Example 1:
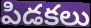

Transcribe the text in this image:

పిడకలు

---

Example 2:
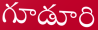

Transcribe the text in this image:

గూడూరి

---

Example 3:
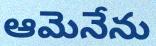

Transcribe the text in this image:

ఆమెనేను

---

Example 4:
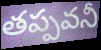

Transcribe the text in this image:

తప్పవనీ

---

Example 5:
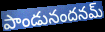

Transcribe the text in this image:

పాండునందనమ్